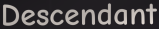
Descendant